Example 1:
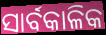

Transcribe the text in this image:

ସାର୍ବକାଳିକ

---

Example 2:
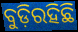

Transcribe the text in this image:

ବୁଡ଼ିରହିଛି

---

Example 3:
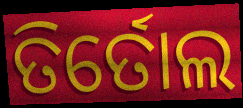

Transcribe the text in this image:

ତିର୍ତୋଲ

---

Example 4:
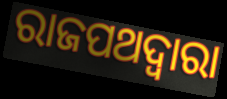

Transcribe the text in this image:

ରାଜପଥଦ୍ୱାରା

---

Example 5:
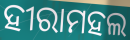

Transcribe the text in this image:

ହୀରାମହଲ